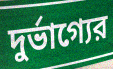
দুর্ভাগ্যের